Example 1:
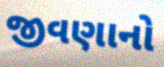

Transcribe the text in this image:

જીવણાનો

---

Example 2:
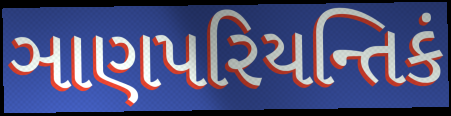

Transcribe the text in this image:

ઞાણપરિયન્તિકં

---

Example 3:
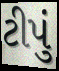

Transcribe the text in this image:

ટીપું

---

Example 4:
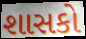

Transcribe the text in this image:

શાસકો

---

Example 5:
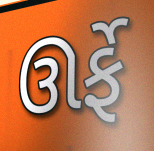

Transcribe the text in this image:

ઊર્ફે